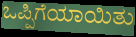
ಒಪ್ಪಿಗೆಯಾಯಿತು